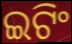
ଇଟିଂ